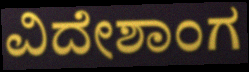
ವಿದೇಶಾಂಗ